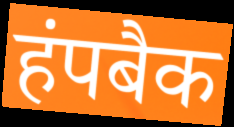
हंपबैक